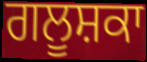
ਗਲੂਸ਼ਕਾ